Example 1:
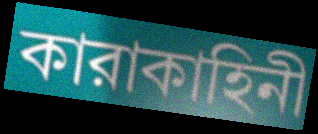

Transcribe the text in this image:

কারাকাহিনী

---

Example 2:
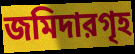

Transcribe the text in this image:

জমিদারগৃহ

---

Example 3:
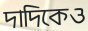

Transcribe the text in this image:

দাদিকেও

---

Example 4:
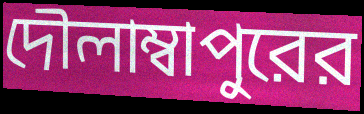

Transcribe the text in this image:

দৌলাম্বাপুরের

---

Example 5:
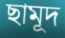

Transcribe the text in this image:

ছামূদ